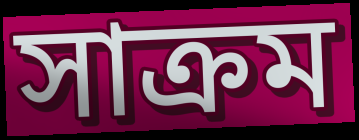
সাক্রম